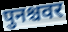
पुनश्चवर